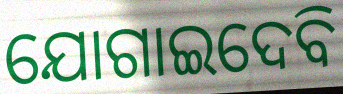
ଯୋଗାଇଦେବି